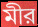
মীর